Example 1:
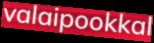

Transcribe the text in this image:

valaipookkal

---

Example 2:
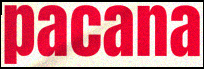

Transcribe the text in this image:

pacana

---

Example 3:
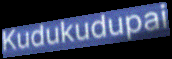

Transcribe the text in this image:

Kudukudupai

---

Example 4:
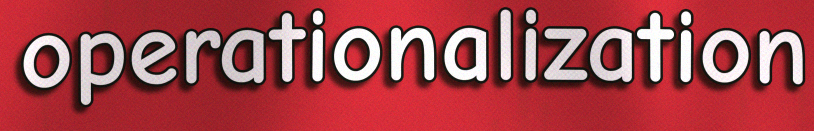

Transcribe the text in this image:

operationalization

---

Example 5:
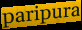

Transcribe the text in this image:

paripura